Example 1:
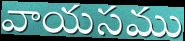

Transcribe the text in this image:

వాయసము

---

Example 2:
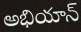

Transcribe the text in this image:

అభియాన్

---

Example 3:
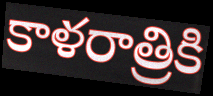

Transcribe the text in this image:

కాళరాత్రికి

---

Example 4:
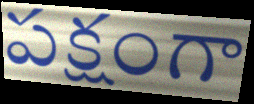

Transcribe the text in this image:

పక్షంగా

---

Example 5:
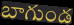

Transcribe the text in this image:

బాగుండ